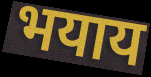
भयाय